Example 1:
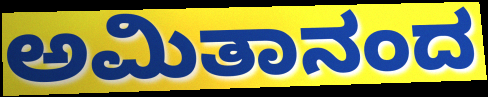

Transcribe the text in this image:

ಅಮಿತಾನಂದ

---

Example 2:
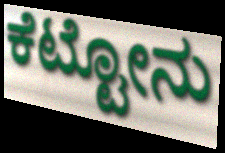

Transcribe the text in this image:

ಕೆಟ್ಟೋನು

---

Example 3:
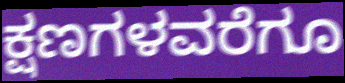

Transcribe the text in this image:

ಕ್ಷಣಗಳವರೆಗೂ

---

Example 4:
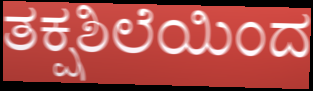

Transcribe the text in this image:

ತಕ್ಷಶಿಲೆಯಿಂದ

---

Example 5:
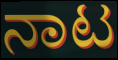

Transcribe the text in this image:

ನಾಟ